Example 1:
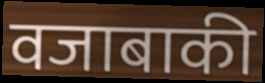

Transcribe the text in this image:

वजाबाकी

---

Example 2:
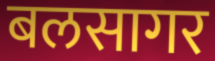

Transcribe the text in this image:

बलसागर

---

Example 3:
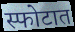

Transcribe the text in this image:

स्फोटात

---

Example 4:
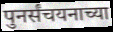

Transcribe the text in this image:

पुनर्संचयनाच्या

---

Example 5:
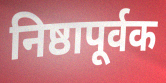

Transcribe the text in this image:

निष्ठापूर्वक